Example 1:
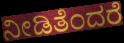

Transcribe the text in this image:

ನೀಡಿತೆಂದರೆ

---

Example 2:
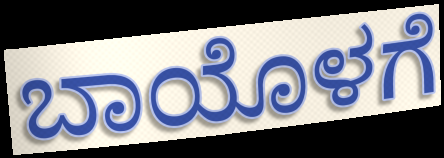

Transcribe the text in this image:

ಬಾಯೊಳಗೆ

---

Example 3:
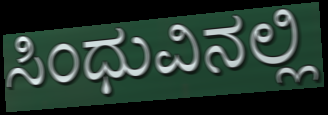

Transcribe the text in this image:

ಸಿಂಧುವಿನಲ್ಲಿ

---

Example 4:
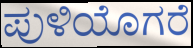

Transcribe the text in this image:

ಪುಳಿಯೊಗರೆ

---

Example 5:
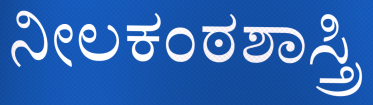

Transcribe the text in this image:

ನೀಲಕಂಠಶಾಸ್ತ್ರಿ